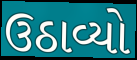
ઉઠાવ્યો